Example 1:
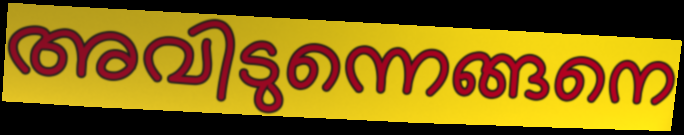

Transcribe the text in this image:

അവിടുന്നെങ്ങനെ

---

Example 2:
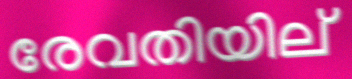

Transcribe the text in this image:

രേവതിയില്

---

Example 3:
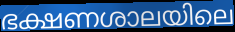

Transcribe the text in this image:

ഭക്ഷണശാലയിലെ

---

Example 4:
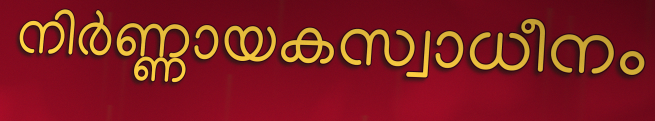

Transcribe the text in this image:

നിർണ്ണായകസ്വാധീനം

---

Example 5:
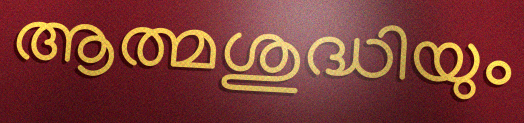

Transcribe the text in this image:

ആത്മശുദ്ധിയും